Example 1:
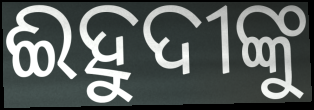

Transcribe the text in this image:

ଈହୁଦୀଙ୍କୁ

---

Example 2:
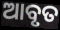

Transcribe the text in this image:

ଆବୃତ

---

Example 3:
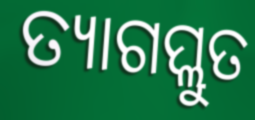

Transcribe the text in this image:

ତ୍ୟାଗପ୍ଲୁତ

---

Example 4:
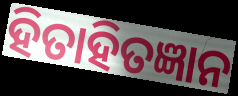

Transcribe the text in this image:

ହିତାହିତଜ୍ଞାନ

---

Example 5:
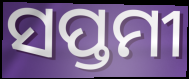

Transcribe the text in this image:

ସପ୍ତମୀ